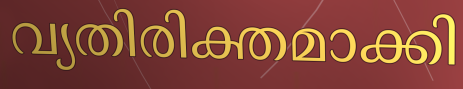
വ്യതിരിക്തമാക്കി